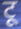
टू